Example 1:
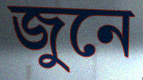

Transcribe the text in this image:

জুনে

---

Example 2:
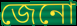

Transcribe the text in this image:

জেনো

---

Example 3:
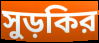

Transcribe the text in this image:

সুড়কির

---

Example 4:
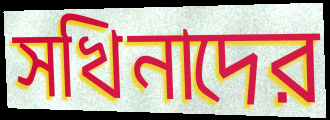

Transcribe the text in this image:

সখিনাদের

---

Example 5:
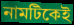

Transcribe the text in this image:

নামটিকেই